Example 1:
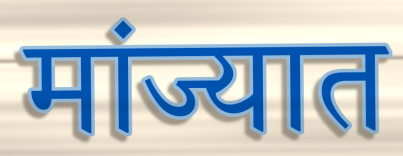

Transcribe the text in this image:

मांज्यात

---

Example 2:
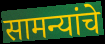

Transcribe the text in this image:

सामन्यांचे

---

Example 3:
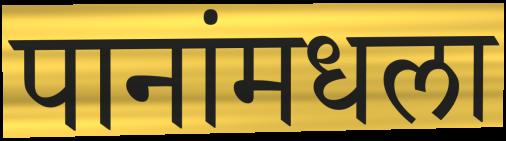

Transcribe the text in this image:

पानांमधला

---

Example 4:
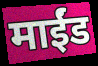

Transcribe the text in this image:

माईंड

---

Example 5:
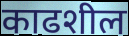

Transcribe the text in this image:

काढशील